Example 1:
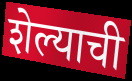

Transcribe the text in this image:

शेल्याची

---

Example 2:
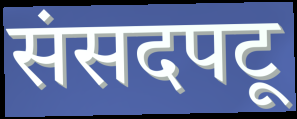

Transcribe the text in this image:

संसदपटू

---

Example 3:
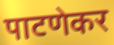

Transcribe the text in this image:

पाटणेकर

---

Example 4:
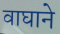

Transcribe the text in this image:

वाघाने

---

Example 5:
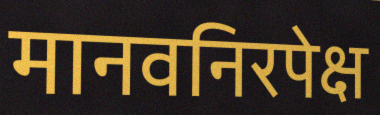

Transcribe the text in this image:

मानवनिरपेक्ष